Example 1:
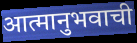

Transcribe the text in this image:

आत्मानुभवाची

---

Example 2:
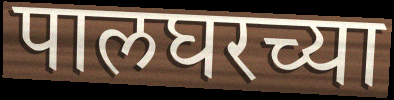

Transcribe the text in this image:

पालघरच्या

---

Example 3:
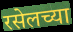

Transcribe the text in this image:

रसेलच्या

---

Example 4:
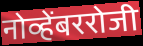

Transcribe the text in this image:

नोव्हेंबररोजी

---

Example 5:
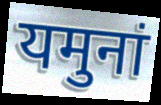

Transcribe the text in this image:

यमुनां